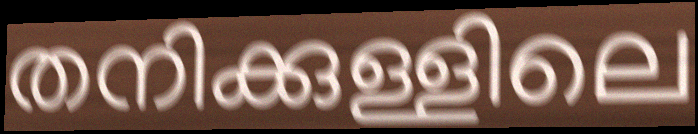
തനിക്കുള്ളിലെ